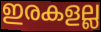
ഇരകളല്ല